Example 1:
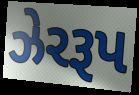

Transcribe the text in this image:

ઝેરરૂપ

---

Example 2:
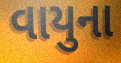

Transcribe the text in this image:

વાયુના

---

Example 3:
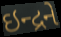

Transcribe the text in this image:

ઇન્દ્રને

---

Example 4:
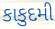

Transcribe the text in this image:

કાકુદમી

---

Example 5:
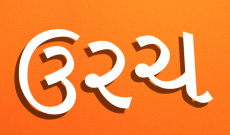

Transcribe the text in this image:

ઉરચ